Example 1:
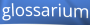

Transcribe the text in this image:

glossarium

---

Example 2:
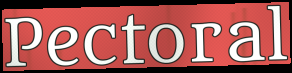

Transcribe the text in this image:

Pectoral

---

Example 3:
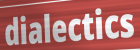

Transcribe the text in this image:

dialectics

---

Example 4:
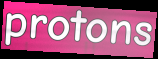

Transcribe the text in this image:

protons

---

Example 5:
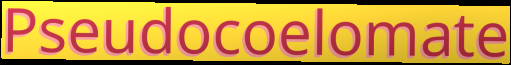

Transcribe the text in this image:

Pseudocoelomate